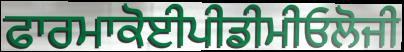
ਫਾਰਮਾਕੋਈਪੀਡੀਮੀਓਲੋਜੀ